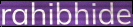
rahibhide